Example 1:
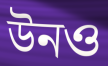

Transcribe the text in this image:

উনও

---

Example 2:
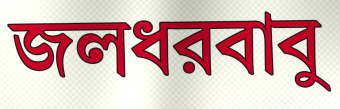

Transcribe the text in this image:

জলধরবাবু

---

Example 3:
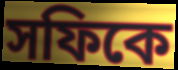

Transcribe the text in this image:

সফিকে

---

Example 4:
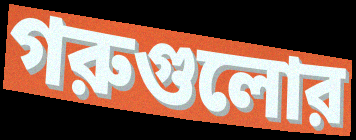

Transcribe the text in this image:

গরুগুলোর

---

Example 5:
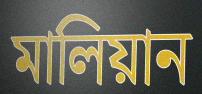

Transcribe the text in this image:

মালিয়ান